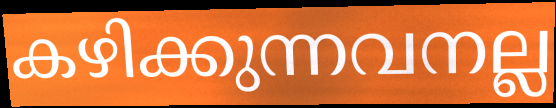
കഴിക്കുന്നവനല്ല